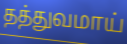
தத்துவமாய்